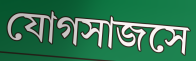
যোগসাজসে